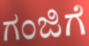
ಗಂಜಿಗೆ